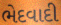
ભેદવાદી